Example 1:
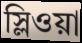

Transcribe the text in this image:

স্লিওয়া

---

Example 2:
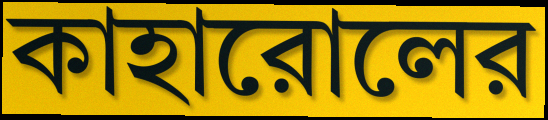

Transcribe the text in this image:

কাহারোলের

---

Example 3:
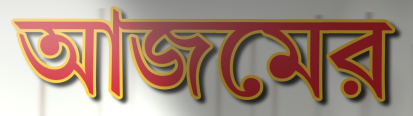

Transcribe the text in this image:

আজমের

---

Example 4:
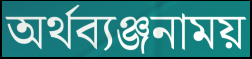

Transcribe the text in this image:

অর্থব্যঞ্জনাময়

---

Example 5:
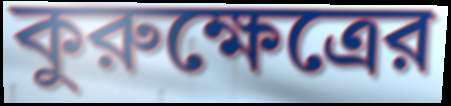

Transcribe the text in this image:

কুরুক্ষেত্রের